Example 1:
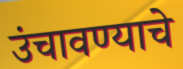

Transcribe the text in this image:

उंचावण्याचे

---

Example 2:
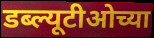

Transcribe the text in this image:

डब्ल्यूटीओच्या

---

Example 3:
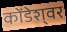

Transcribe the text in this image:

कोंडेश्वर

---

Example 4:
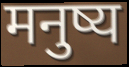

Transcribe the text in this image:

मनुष्य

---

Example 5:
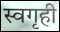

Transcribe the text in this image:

स्वगृही